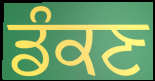
ਡੰਕਣ